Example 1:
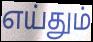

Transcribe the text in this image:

எய்தும்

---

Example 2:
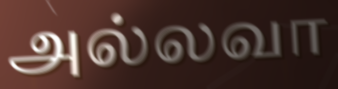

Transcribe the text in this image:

அல்லவா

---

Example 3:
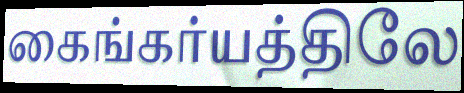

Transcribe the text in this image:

கைங்கர்யத்திலே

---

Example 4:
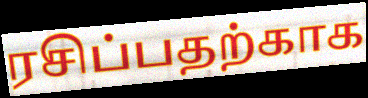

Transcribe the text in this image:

ரசிப்பதற்காக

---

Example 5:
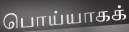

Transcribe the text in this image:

பொய்யாகக்